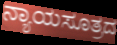
ನ್ಯಾಯಸೂತ್ರದ